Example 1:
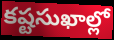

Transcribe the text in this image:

కష్టసుఖాల్లో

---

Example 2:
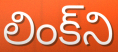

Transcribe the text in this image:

లింక్‌ని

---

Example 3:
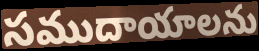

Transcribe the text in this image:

సముదాయాలను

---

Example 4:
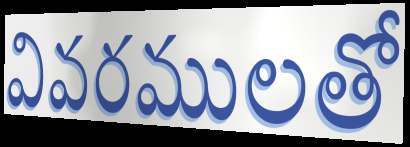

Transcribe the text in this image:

వివరములతో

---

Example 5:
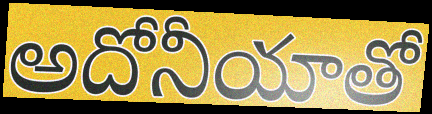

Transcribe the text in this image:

అదోనీయాతో